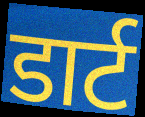
डार्ट